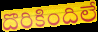
దొరికిందిలే